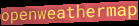
openweathermap